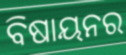
ବିଷାୟନର